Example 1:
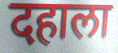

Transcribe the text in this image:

दहाला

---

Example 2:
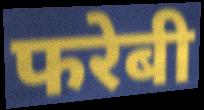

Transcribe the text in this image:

फरेबी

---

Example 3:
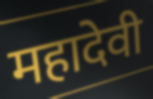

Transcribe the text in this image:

महादेवी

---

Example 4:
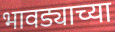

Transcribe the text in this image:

भावड्याच्या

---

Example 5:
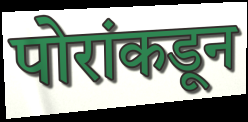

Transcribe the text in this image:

पोरांकडून